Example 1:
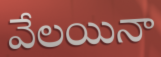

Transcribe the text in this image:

వేలయినా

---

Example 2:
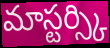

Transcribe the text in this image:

మాస్టర్స్కి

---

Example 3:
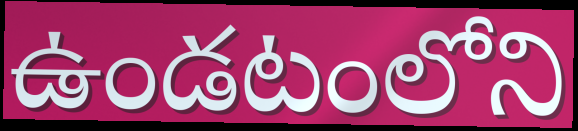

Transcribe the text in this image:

ఉండటంలోని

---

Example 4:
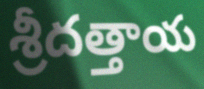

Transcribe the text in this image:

శ్రీదత్తాయ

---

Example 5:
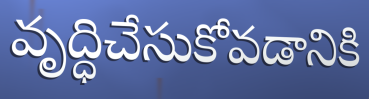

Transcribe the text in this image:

వృద్ధిచేసుకోవడానికి